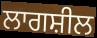
ਲਾਗਸ਼ੀਲ